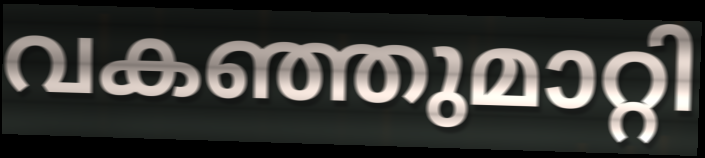
വകഞ്ഞുമാറ്റി